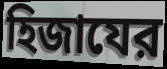
হিজাযের